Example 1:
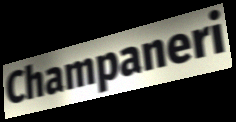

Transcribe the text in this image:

Champaneri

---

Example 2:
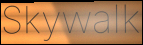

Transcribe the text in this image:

Skywalk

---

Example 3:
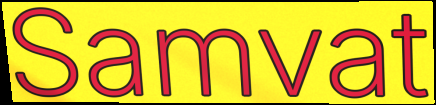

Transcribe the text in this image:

Samvat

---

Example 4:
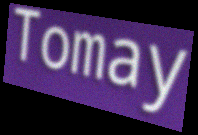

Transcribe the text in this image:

Tomay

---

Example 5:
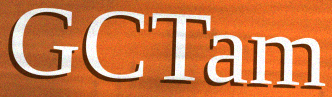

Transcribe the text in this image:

GCTam